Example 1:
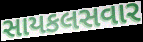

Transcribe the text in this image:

સાયકલસવાર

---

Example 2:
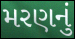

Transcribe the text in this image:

મરણનું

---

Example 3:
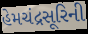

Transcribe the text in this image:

હેમચંદ્રસૂરિની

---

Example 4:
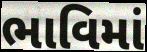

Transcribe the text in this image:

ભાવિમાં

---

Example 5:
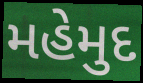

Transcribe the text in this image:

મહેમુદ